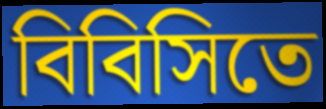
বিবিসিতে